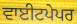
ਵਾਈਟਪੇਪਰ